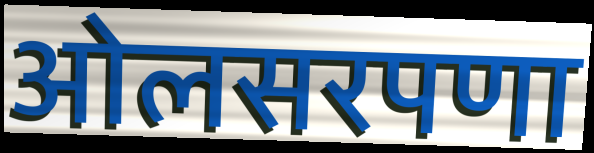
ओलसरपणा